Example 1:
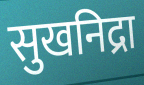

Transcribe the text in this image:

सुखनिद्रा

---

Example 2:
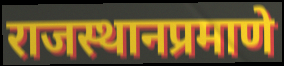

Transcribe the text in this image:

राजस्थानप्रमाणे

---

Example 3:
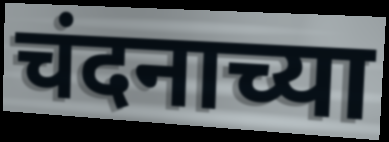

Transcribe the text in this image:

चंदनाच्या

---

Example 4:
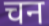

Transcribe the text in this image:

चन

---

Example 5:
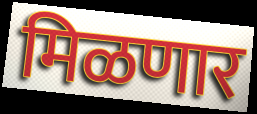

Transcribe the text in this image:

मिळणार